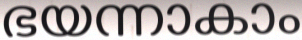
ഭയന്നാകാം